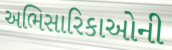
અભિસારિકાઓની